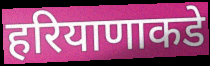
हरियाणाकडे